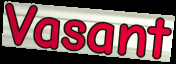
Vasant